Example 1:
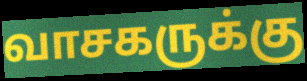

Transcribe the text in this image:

வாசகருக்கு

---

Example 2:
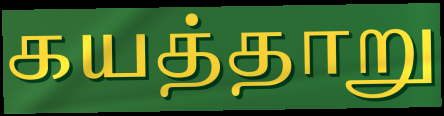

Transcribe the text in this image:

கயத்தாறு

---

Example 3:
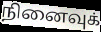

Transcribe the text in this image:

நினைவுக்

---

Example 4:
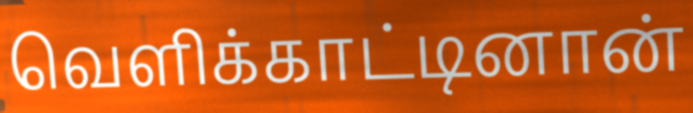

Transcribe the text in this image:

வெளிக்காட்டினான்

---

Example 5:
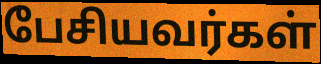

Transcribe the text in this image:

பேசியவர்கள்